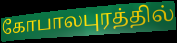
கோபாலபுரத்தில்